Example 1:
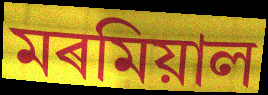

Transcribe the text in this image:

মৰমিয়াল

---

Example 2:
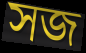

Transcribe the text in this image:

সজ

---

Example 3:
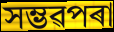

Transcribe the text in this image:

সম্ভৱপৰা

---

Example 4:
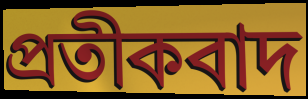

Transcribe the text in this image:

প্ৰতীকবাদ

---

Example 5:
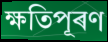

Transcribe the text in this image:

ক্ষতিপূৰণ